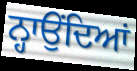
ਨ੍ਹਾਉਂਦਿਆਂ